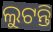
ଲୁଟନ୍ତି